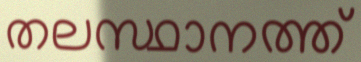
തലസ്ഥാനത്ത്